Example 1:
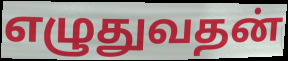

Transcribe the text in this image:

எழுதுவதன்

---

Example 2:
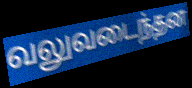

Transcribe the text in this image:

வலுவடைந்தன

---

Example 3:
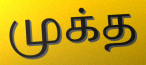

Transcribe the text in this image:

முக்த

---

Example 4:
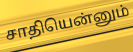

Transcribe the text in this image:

சாதியென்னும்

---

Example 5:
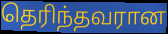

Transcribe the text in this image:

தெரிந்தவரான